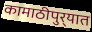
कामाठीपुर्‍यात